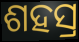
ଶହସ୍ର